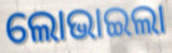
ଲୋଭାଇଲା